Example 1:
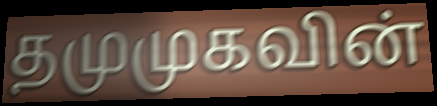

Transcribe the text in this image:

தமுமுகவின்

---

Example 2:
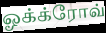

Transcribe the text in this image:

ஓக்க்ரோவ்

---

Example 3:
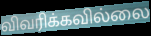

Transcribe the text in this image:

விவரிக்கவில்லை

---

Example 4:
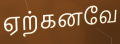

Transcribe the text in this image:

ஏற்கனவே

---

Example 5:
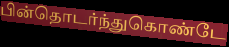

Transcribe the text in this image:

பின்தொடர்ந்துகொண்டே